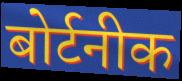
बोर्टनीक